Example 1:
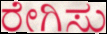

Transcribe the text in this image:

ರೇಗಿಸು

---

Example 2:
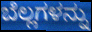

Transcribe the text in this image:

ಬೆಲ್ಲಗಳನ್ನು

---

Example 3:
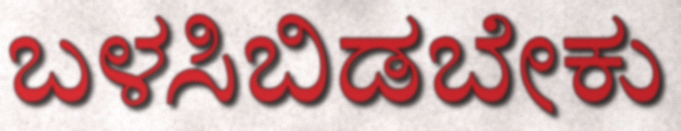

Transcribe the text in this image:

ಬಳಸಿಬಿಡಬೇಕು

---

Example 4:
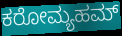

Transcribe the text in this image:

ಕರೋಮ್ಯಹಮ್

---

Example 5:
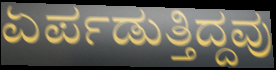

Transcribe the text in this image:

ಏರ್ಪಡುತ್ತಿದ್ದವು